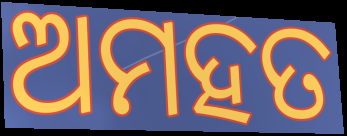
ଅମହତ